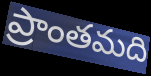
ప్రాంతమది